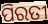
ପିରତୀ